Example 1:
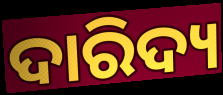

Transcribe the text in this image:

ଦାରିଦ୍ୟ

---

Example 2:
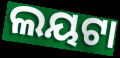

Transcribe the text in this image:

ଲୟଟା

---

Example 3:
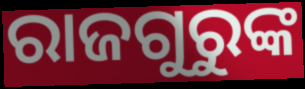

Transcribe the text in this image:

ରାଜଗୁରୁଙ୍କ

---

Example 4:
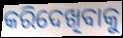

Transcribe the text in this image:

କରିଦେଖିବାକୁ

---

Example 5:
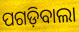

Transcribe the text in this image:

ପଗଡ଼ିବାଲା